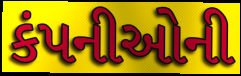
કંપનીઓની